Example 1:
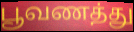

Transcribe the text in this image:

பூவணத்து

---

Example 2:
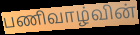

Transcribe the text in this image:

பணிவாழ்வின்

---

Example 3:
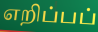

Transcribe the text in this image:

எறிப்பப்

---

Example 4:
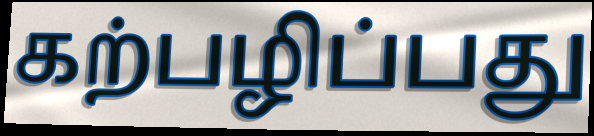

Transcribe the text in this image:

கற்பழிப்பது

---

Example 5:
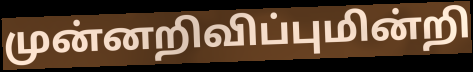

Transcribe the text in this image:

முன்னறிவிப்புமின்றி